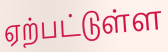
ஏற்பட்டுள்ள